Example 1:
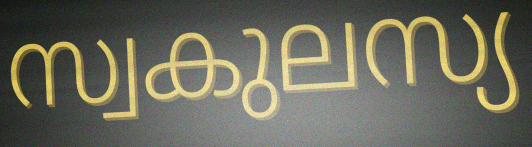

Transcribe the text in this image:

സ്വകുലസ്യ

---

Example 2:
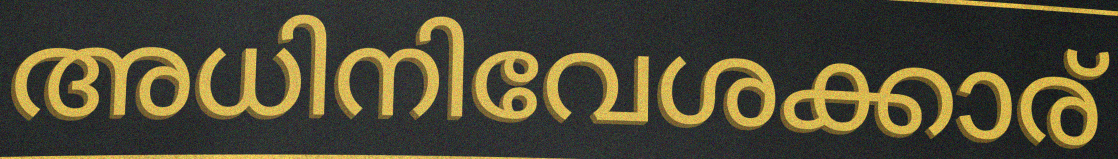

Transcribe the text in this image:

അധിനിവേശക്കാര്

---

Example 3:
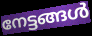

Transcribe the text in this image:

നേട്ടങ്ങൾ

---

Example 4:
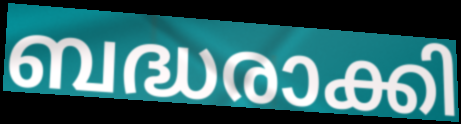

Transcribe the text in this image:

ബദ്ധരാക്കി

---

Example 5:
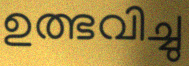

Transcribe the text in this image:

ഉത്ഭവിച്ചു